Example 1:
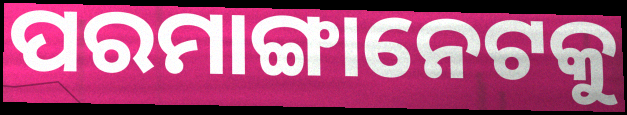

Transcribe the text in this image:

ପରମାଙ୍ଗାନେଟକୁ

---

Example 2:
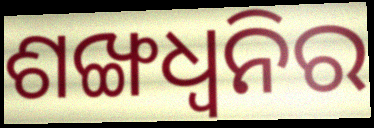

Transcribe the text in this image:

ଶଙ୍ଖଧ୍ବନିର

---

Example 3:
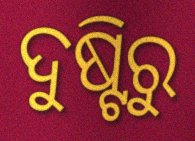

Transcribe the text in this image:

ଦୁଷ୍ଟିରୁ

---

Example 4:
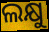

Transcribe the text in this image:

ଲକ୍ଷୁ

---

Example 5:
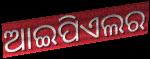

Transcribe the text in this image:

ଆଇପିଏଲର